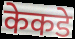
केकडे